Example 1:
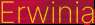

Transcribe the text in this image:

Erwinia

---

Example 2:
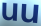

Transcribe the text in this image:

uu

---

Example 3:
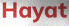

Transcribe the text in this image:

Hayat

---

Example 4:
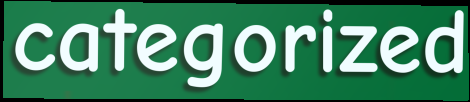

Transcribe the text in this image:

categorized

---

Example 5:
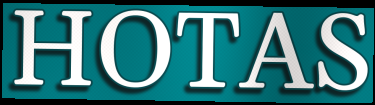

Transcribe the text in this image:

HOTAS